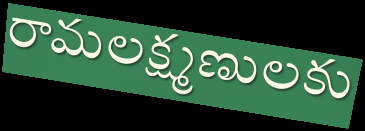
రామలక్ష్మణులకు